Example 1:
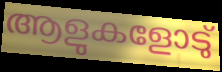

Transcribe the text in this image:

ആളുകളോടു്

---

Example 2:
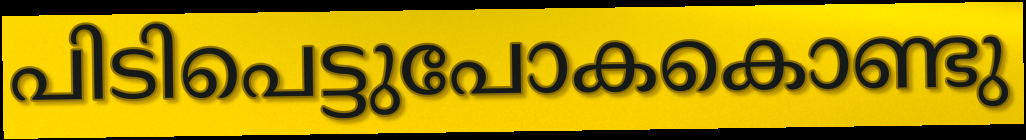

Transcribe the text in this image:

പിടിപെട്ടുപോകകൊണ്ടു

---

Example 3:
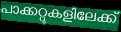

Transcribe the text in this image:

പാക്കറ്റുകളിലേക്ക്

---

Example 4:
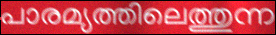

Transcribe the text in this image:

പാരമ്യത്തിലെത്തുന്ന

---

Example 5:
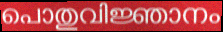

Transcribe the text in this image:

പൊതുവിജ്ഞാനം